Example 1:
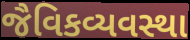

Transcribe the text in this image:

જૈવિકવ્યવસ્થા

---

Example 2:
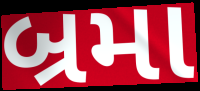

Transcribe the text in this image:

બ્રમા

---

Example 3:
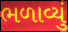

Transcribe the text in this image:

ભળાવ્યું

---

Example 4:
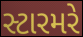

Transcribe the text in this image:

સ્ટારમરે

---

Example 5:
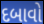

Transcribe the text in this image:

દબાવો